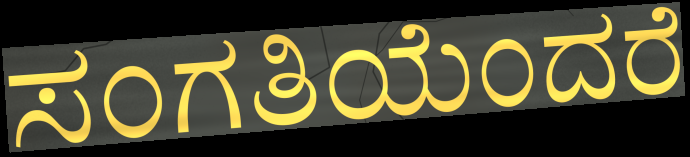
ಸಂಗತಿಯೆಂದರೆ